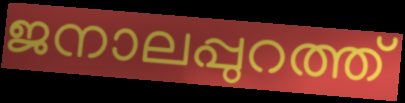
ജനാലപ്പുറത്ത്